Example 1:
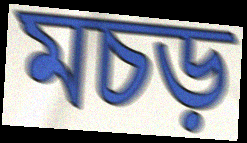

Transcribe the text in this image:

মচড়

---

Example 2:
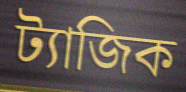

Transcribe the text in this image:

ট্যাজিক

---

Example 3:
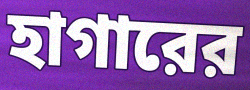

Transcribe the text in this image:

হাগারের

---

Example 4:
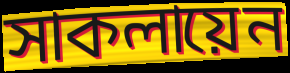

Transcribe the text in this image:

সাকলায়েন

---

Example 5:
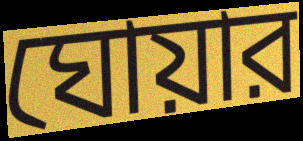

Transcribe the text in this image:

ঘোয়ার